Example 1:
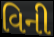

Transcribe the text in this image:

વિની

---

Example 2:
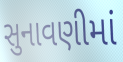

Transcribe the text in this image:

સુનાવણીમાં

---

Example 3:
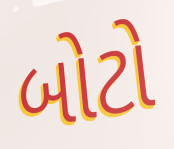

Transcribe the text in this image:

બોટો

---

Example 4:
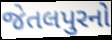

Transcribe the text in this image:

જેતલપુરનો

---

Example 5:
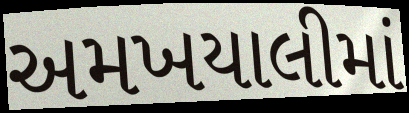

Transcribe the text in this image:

અમખયાલીમાં